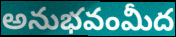
అనుభవంమీద